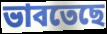
ভাবতেছে